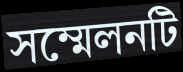
সম্মেলনটি